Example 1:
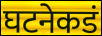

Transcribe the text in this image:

घटनेकडं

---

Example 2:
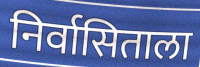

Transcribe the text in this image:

निर्वासिताला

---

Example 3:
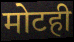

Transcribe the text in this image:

मोटही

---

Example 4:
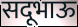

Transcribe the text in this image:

सदूभाऊ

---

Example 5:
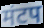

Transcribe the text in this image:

मंटप